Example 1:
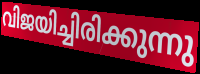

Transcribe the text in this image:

വിജയിച്ചിരിക്കുന്നു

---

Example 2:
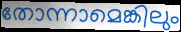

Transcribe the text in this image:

തോന്നാമെങ്കിലും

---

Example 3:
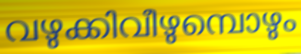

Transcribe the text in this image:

വഴുക്കിവീഴുമ്പൊഴും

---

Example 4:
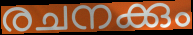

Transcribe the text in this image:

രചനക്കും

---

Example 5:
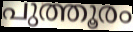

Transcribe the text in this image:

പുത്തൂരം